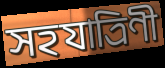
সহযাত্রিণী